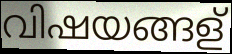
വിഷയങ്ങള്